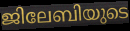
ജിലേബിയുടെ